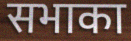
सभाका